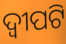
ଦ୍ୱୀପଟି